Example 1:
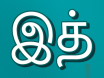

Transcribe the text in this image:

இத்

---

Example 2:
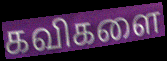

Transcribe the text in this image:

கவிகளை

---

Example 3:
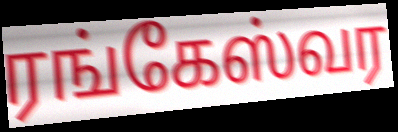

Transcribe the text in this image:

ரங்கேஸ்வர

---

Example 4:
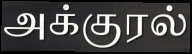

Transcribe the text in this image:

அக்குரல்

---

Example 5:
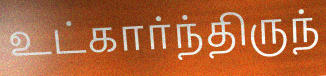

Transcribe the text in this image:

உட்கார்ந்திருந்